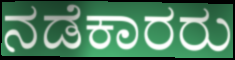
ನಡೆಕಾರರು